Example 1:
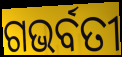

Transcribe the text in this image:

ଗଭର୍ବତୀ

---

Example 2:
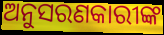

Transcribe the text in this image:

ଅନୁସରଣକାରୀଙ୍କ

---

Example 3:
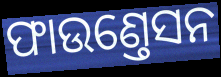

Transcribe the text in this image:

ଫାଉଣ୍ତେସନ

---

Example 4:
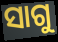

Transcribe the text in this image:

ସାଗୁ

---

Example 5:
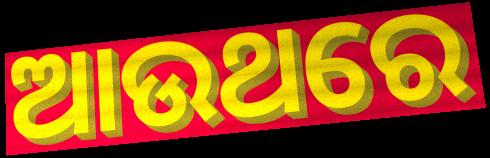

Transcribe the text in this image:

ଆଉଥରେ